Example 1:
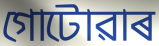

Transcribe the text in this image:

গোটোৱাৰ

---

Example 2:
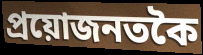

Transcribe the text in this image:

প্ৰয়োজনতকৈ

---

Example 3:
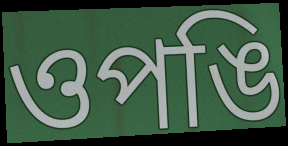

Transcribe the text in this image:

ওপঙি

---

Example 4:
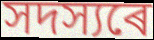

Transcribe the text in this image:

সদস্যৰে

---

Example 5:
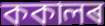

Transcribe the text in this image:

ককালৰ